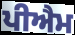
ਪੀਐਮ